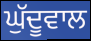
ਘੁੱਦੂਵਾਲ